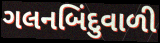
ગલનબિંદુવાળી